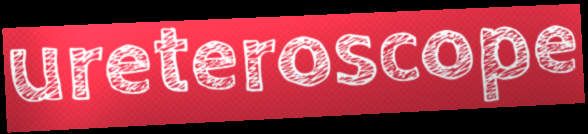
ureteroscope